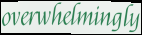
overwhelmingly